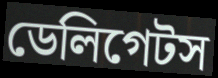
ডেলিগেটস